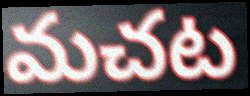
మచట